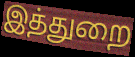
இத்துறை